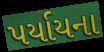
પર્યાયના